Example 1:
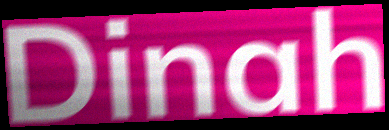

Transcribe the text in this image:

Dinah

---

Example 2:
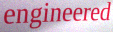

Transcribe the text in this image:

engineered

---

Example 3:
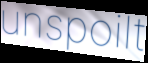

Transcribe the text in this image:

unspoilt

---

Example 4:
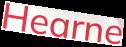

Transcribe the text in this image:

Hearne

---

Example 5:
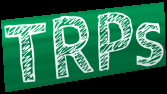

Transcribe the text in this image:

TRPs